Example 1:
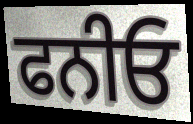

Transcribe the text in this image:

ਫਨੀਓ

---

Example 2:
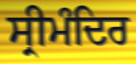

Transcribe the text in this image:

ਸ੍ਰੀਮੰਦਿਰ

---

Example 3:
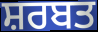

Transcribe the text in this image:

ਸ਼ਰਬਤ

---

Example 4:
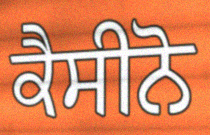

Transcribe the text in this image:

ਕੈਸੀਨੋ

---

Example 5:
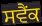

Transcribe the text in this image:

ਸਵੈਂਕ